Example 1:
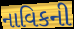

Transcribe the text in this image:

નાવિકની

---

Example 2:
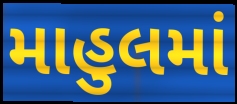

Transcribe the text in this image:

માહુલમાં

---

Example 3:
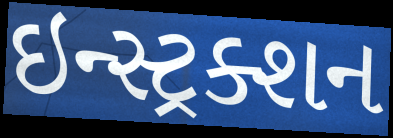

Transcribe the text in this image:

ઇન્સ્ટ્રક્શન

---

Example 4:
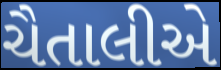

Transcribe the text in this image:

ચૈતાલીએ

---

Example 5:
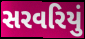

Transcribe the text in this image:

સરવરિયું